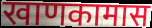
खाणकामास